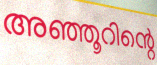
അഞ്ഞൂറിന്റെ